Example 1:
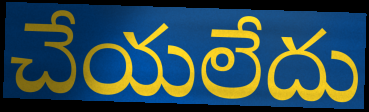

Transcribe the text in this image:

చేయలేదు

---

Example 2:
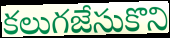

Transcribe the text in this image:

కలుగజేసుకొని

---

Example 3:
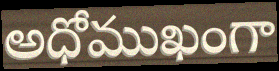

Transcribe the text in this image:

అధోముఖంగా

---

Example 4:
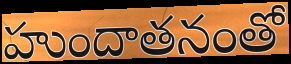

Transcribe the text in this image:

హుందాతనంతో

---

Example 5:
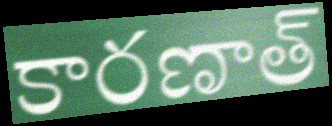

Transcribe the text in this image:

కారణాత్